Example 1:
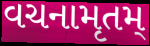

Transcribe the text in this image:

વચનામૃતમ્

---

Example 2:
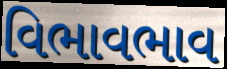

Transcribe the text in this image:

વિભાવભાવ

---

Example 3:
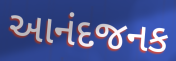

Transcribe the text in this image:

આનંદજનક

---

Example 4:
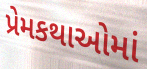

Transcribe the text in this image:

પ્રેમકથાઓમાં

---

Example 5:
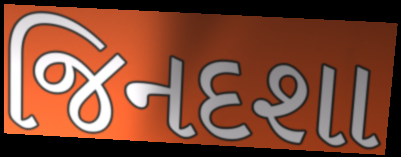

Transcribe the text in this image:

જિનદશા